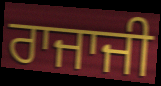
ਰਾਜਾਜੀ